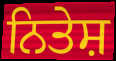
ਨਿਤੇਸ਼